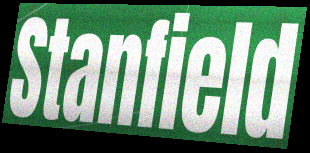
Stanfield